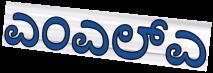
ಎಂಎಲ್ಎ